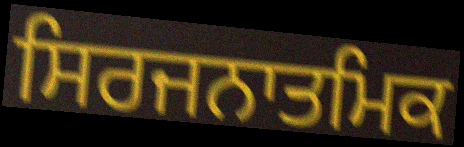
ਸਿਰਜਨਾਤਮਿਕ